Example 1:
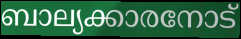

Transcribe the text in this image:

ബാല്യക്കാരനോട്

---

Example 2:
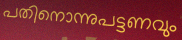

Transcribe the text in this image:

പതിനൊന്നുപട്ടണവും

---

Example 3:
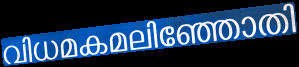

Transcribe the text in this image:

വിധമകമലിഞ്ഞോതി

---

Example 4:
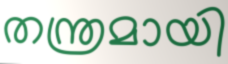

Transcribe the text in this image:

തന്ത്രമായി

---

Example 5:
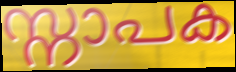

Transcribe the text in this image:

സ്നാപക